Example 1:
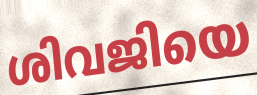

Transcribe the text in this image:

ശിവജിയെ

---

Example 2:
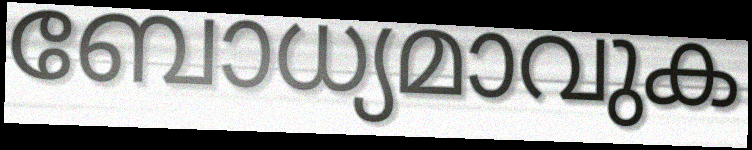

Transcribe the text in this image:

ബോധ്യമാവുക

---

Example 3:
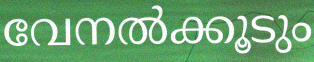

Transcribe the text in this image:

വേനൽക്കൂടും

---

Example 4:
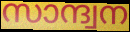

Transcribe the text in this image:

സാന്ദ്വന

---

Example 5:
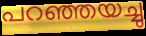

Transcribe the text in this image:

പറഞ്ഞയച്ചു